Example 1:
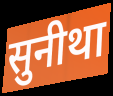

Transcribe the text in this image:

सुनीथा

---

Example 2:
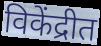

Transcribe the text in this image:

विकेंद्रीत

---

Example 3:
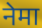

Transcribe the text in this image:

नेमा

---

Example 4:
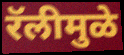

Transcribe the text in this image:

रॅलीमुळे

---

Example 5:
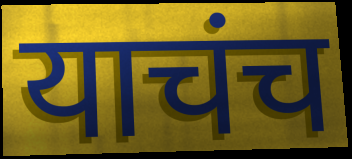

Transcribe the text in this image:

याचंच